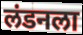
लंडनला